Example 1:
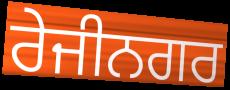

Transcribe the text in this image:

ਰੇਜੀਨਗਰ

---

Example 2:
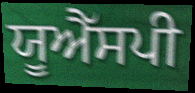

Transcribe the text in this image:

ਯੂਐੱਸਪੀ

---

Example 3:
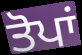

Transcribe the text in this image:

ਤੋਪਾਂ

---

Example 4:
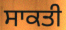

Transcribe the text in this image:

ਸਾਕਤੀ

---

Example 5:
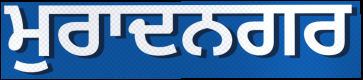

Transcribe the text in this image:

ਮੁਰਾਦਨਗਰ